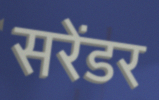
सरेंडर